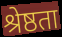
श्रेष्ठता